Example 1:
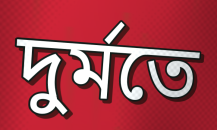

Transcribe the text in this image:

দুর্মতে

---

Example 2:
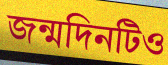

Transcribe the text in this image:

জন্মদিনটিও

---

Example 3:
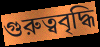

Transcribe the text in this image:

গুরুত্ববৃদ্ধি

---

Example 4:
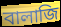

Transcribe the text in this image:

বালাজি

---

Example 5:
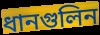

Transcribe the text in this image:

ধানগুলিন